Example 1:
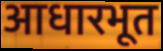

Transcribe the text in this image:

आधारभूत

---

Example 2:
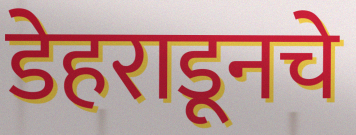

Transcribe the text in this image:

डेहराडूनचे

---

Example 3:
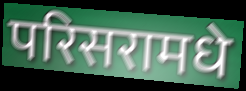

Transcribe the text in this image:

परिसरामधे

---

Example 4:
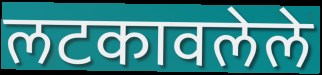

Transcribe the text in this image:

लटकावलेले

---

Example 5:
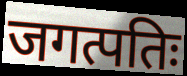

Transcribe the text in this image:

जगत्पतिः